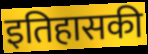
इतिहासकी